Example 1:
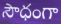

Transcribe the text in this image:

సౌధంగా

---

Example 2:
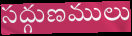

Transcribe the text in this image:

సద్గుణములు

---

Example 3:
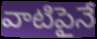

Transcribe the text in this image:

వాటిపైనే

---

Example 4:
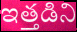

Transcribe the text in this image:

ఇత్తడిని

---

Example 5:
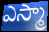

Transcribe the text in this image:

ఎస్మా